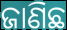
ଜାଣିଛ